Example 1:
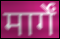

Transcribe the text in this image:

मार्गें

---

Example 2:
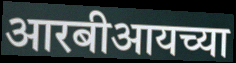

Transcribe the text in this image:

आरबीआयच्या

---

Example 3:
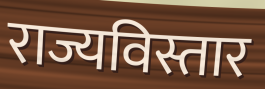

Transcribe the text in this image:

राज्यविस्तार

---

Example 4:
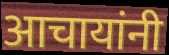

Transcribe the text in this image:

आचायांनी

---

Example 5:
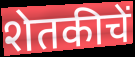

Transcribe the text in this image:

शेतकीचें